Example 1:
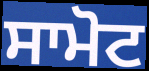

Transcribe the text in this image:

ਸਾਮੋਟ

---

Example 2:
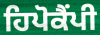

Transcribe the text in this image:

ਹਿਪੋਕੈਂਪੀ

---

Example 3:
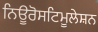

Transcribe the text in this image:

ਨਿਊਰੋਸਟਿਮੂਲੇਸ਼ਨ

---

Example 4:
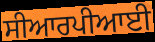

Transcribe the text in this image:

ਸੀਆਰਪੀਆਈ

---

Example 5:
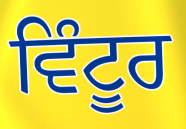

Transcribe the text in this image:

ਵਿੰਟੂਰ